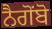
ਨੈਗੋਂਬੋ